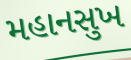
મહાનસુખ